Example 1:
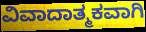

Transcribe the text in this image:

ವಿವಾದಾತ್ಮಕವಾಗಿ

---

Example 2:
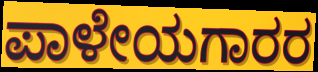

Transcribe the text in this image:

ಪಾಳೇಯಗಾರರ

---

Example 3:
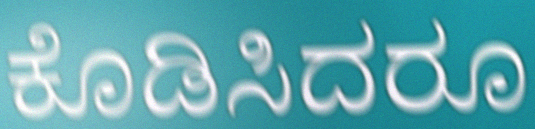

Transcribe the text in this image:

ಕೊಡಿಸಿದರೂ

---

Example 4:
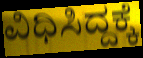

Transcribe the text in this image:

ವಿಧಿಸಿದ್ದಕ್ಕೆ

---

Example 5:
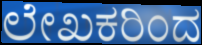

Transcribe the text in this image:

ಲೇಖಕರಿಂದ